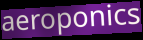
aeroponics